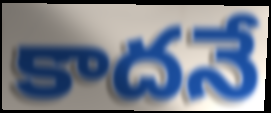
కాదనే